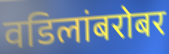
वडिलांबरोबर